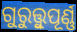
ଗୁରୁତ୍ତ୍ୱୁପୂର୍ଣ୍ଣ